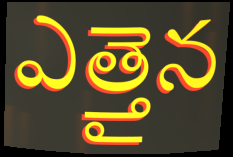
ఎత్తైన